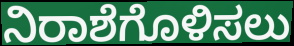
ನಿರಾಶೆಗೊಳಿಸಲು